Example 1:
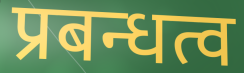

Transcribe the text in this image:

प्रबन्धत्व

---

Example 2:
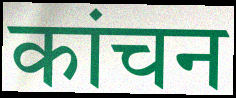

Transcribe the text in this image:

कांचन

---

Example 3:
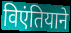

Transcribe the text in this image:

विएंतियाने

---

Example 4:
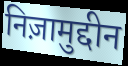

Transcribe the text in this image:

निज़ामुद्दीन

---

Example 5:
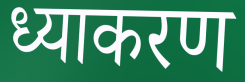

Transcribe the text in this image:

ध्याकरण